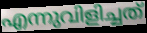
എന്നുവിളിച്ചത്